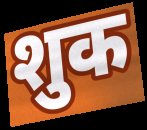
शुक